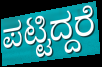
ಪಟ್ಟಿದ್ದರೆ